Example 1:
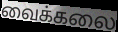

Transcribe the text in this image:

வைக்கலை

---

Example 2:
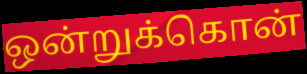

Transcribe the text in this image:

ஒன்றுக்கொன்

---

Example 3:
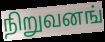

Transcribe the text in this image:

நிறுவனங்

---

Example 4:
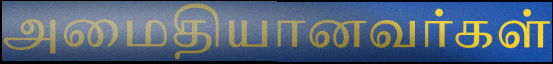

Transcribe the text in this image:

அமைதியானவர்கள்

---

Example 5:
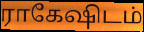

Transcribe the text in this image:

ராகேஷிடம்